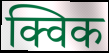
क्विक